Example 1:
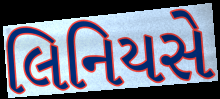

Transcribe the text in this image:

લિનિયસે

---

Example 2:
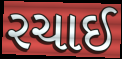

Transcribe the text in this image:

રચાઈ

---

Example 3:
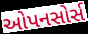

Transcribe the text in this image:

ઓપનસોર્સ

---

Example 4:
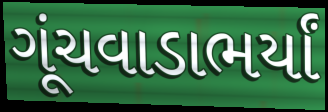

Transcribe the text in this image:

ગૂંચવાડાભર્યાં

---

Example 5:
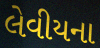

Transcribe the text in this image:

લેવીયના